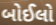
બોઈલો